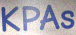
KPAs